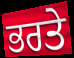
ਭਰਤੇ